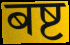
बष्ट